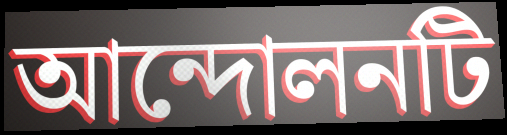
আন্দোলনটি